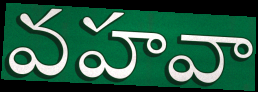
వహవా